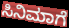
ಸಿನಿಮಾಗೆ